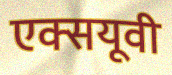
एक्सयूवी